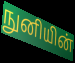
நுனியின்